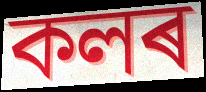
কলৰ